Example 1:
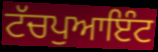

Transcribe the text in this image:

ਟੱਚਪੁਆਇੰਟ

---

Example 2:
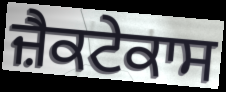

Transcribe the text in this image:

ਜ਼ੈਕਟੇਕਾਸ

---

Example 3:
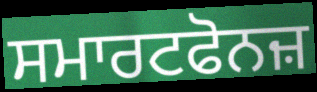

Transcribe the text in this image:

ਸਮਾਰਟਫੋਨਜ਼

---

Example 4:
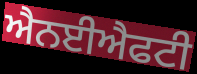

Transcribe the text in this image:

ਐਨਈਐਫਟੀ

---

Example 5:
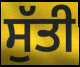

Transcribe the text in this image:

ਸੁੱਤੀ